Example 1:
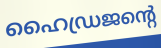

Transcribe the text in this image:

ഹൈഡ്രജന്റെ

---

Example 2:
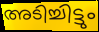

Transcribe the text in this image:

അടിച്ചിട്ടും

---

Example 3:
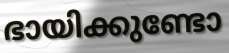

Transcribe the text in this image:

ഭായിക്കുണ്ടോ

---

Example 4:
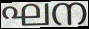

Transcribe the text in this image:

ഘന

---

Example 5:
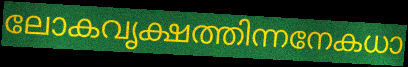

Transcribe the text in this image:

ലോകവൃക്ഷത്തിന്നനേകധാ